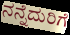
ನನ್ನೆದುರಿಗೆ